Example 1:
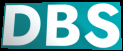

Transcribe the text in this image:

DBS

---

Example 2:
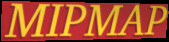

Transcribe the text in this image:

MIPMAP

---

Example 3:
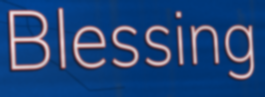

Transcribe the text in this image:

Blessing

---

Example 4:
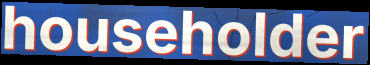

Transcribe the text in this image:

householder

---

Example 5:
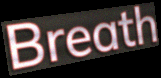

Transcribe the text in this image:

Breath